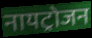
नायट्रोजन